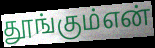
தூங்கும்என்